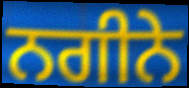
ਨਗੀਨੇ